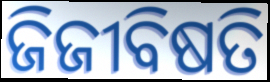
ଜିଜୀବିଷତି